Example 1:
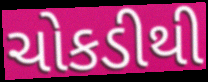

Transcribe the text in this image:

ચોકડીથી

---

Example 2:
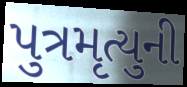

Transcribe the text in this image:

પુત્રમૃત્યુની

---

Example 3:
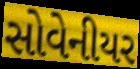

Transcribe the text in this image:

સોવેનીયર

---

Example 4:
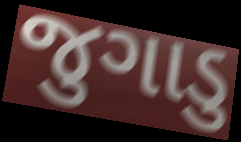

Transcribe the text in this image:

જુગાડુ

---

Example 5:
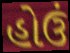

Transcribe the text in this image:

હોઉં